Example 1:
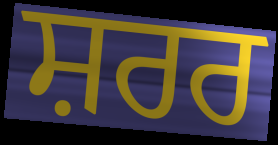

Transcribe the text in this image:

ਸ਼ਰਰ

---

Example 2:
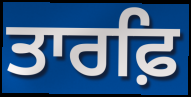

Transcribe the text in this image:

ਤਾਰਫ਼ਿ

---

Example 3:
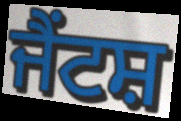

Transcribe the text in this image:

ਜੈਂਟਸ਼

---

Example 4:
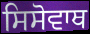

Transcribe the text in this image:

ਸਿਸੋਵਾਥ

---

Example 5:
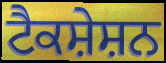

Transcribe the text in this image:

ਟੈਕਸ਼ੇਸ਼ਨ